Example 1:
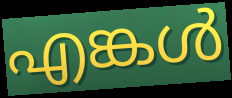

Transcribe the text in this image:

എങ്കൾ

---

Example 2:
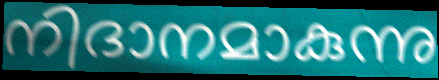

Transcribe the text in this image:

നിദാനമാകുന്നു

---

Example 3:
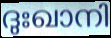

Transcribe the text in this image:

ദുഃഖാനി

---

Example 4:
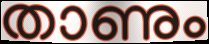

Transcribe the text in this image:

താണും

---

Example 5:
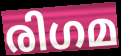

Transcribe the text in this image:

രിഗമ